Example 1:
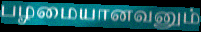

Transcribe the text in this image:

பழமையானவனும்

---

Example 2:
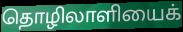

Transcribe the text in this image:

தொழிலாளியைக்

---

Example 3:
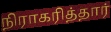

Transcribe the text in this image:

நிராகரித்தார்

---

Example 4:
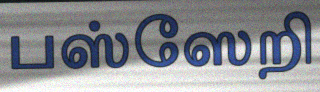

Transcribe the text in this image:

பஸ்ஸேறி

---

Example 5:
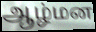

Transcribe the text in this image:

ஆழ்மன